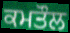
ਕਮਤੌਲ